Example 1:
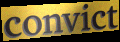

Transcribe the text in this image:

convict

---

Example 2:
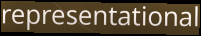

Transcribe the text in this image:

representational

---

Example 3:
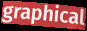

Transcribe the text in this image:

graphical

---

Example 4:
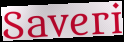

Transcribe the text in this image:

Saveri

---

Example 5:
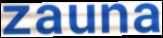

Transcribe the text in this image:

zauna